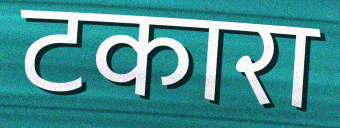
टकारा